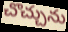
చొచ్చును